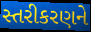
સ્તરીકરણને